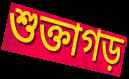
শুক্তাগড়